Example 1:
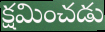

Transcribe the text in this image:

క్షమించడు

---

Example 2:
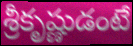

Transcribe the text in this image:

శ్రీకృష్ణుడంటే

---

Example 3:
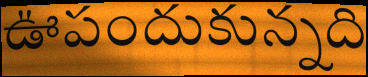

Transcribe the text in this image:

ఊపందుకున్నది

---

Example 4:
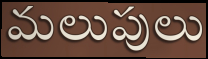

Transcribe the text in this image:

మలుపులు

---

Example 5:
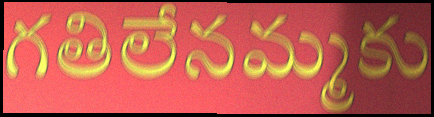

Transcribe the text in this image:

గతిలేనమ్మకు